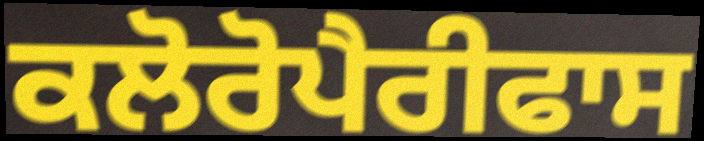
ਕਲੋਰੋਪੈਰੀਫਾਸ